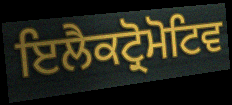
ਇਲੈਕਟ੍ਰੋਮੋਟਿਵ